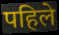
पहिले